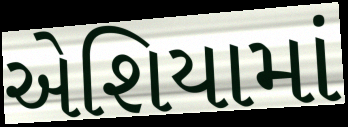
એશિયામાં